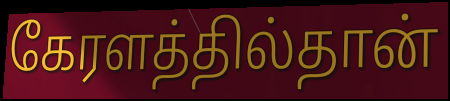
கேரளத்தில்தான்